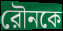
রৌনকে